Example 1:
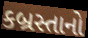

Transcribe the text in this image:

કબ્રસ્તાનો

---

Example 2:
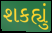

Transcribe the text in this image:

શકહ્યું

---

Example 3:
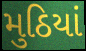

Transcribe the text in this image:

મુઠિયાં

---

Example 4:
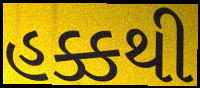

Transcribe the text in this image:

હક્કથી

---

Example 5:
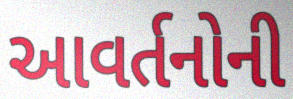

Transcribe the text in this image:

આવર્તનોની